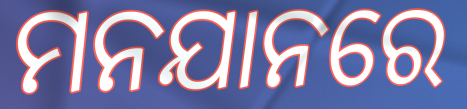
ମନଯାନରେ